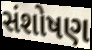
સંશોષણ